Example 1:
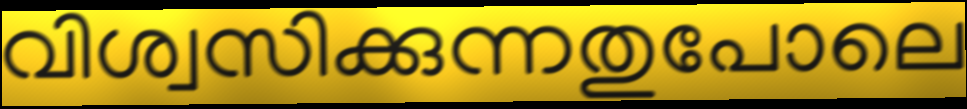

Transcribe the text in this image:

വിശ്വസിക്കുന്നതുപോലെ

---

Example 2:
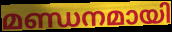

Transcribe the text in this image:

മണ്ഡനമായി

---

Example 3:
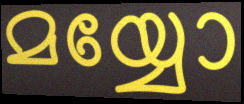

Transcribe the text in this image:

മയ്യോ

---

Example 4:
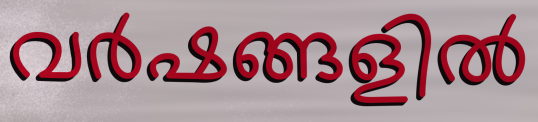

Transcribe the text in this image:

വർഷങ്ങളിൽ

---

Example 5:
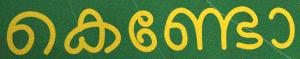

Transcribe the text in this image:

കെണ്ടോ